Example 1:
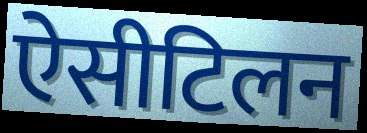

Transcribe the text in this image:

ऐसीटिलन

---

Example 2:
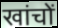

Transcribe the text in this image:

खांचों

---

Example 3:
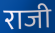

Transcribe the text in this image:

राजी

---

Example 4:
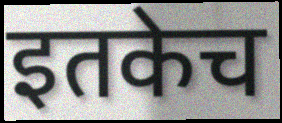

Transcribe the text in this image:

इतकेच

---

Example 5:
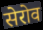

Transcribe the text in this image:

सेरोव